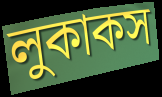
লুকাকস